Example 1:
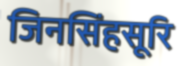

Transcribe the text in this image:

जिनसिंहसूरि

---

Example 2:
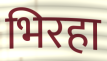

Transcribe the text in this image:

भिरहा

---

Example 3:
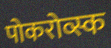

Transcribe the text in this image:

पोकरोव्स्क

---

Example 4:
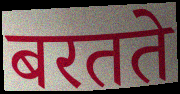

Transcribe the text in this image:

बरतते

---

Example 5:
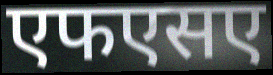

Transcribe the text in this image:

एफएसए